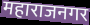
महाराजनगर